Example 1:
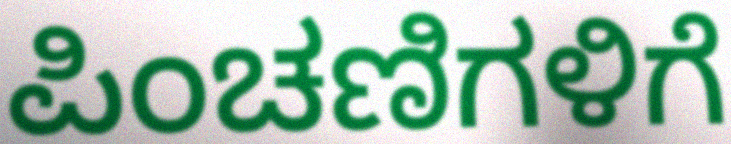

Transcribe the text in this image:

ಪಿಂಚಣಿಗಳಿಗೆ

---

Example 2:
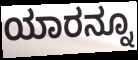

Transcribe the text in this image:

ಯಾರನ್ನೂ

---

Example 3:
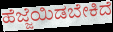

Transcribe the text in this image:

ಹೆಜ್ಜೆಯಿಡಬೇಕಿದೆ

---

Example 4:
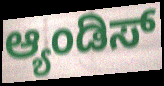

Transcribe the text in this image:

ಆ್ಯಂಡಿಸ್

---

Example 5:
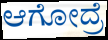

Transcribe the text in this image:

ಆಗೋದ್ರೆ